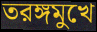
তরঙ্গমুখে